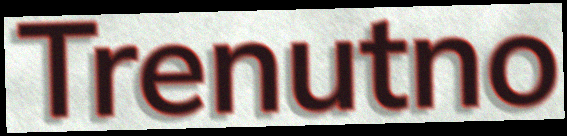
Trenutno